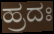
ಹ್ರದಃ